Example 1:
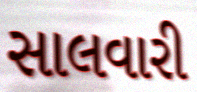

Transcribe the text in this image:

સાલવારી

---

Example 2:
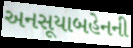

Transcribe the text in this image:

અનસૂયાબહેનની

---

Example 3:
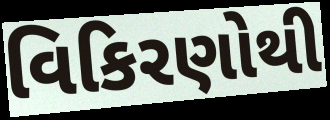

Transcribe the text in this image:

વિકિરણોથી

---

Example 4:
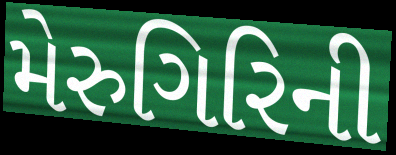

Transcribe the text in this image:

મેરુગિરિની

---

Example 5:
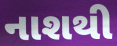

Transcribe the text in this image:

નાશથી